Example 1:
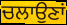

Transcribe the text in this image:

ਚਲਾਉਣਾਂ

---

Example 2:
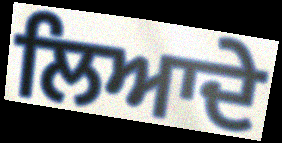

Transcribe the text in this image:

ਲਿਆਦੇ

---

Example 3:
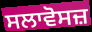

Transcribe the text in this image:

ਸਲਾਵੋਸਜ਼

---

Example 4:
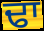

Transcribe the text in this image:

ਢਾ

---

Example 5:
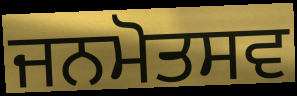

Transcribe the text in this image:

ਜਨਮੋਤਸਵ